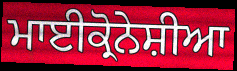
ਮਾਈਕ੍ਰੋਨੇਸ਼ੀਆ